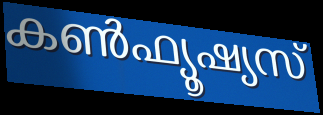
കൺഫ്യൂഷ്യസ്